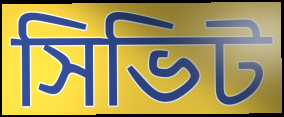
সিভিট